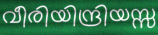
വീരിയിന്ദ്രിയസ്സ